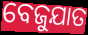
ବେଜୁଯାତ